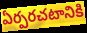
ఏర్పరచటానికి